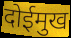
दोईमुख